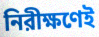
নিরীক্ষণেই